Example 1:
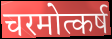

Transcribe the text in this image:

चरमोत्कर्ष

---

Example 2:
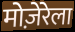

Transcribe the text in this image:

मोज़ेरेला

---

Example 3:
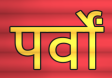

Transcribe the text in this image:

पर्वों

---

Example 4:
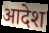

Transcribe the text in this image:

आदेश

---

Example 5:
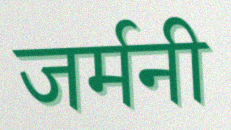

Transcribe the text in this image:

जर्मनी